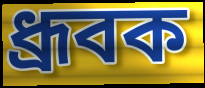
ধ্রূবক